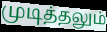
முடித்தலும்